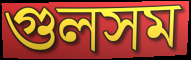
গুলসম